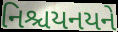
નિશ્ચયનયને